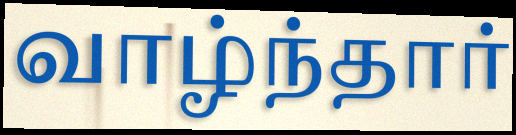
வாழ்ந்தார்